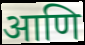
आणि